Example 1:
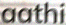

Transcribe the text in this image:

aathi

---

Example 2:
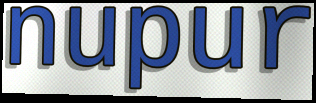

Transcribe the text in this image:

nupur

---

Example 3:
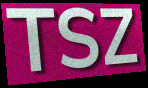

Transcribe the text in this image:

TSZ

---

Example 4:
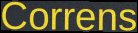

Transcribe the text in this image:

Correns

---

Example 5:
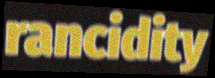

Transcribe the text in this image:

rancidity